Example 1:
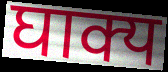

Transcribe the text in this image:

घाक्य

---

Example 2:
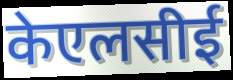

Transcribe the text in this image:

केएलसीई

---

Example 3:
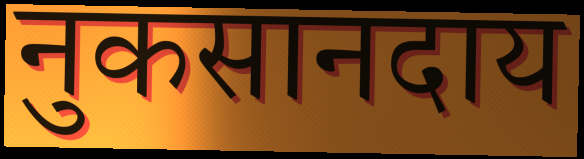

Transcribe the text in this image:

नुकसानदाय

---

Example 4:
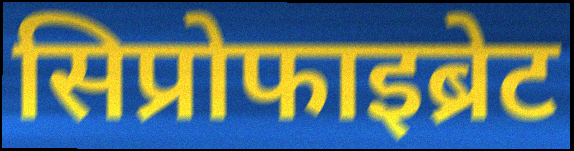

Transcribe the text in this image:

सिप्रोफाइब्रेट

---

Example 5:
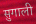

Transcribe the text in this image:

सुगाली